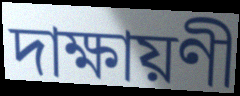
দাক্ষায়ণী